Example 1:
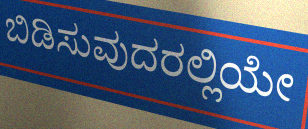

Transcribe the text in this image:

ಬಿಡಿಸುವುದರಲ್ಲಿಯೇ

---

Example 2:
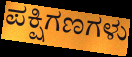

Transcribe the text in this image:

ಪಕ್ಷಿಗಣಗಳು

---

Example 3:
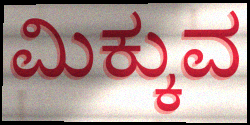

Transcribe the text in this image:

ಮಿಕ್ಕುವ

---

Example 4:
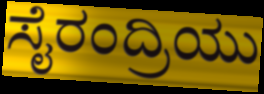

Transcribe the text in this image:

ಸೈರಂದ್ರಿಯು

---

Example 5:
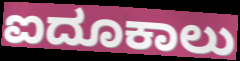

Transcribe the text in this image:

ಐದೂಕಾಲು